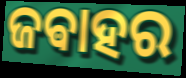
ଜଵାହର